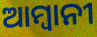
ଆମ୍ବାନୀ